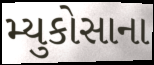
મ્યુકોસાના